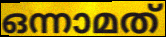
ഒന്നാമത്